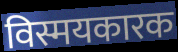
विस्मयकारक